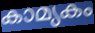
കാമ്യകം